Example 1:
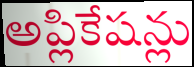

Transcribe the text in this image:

అప్లికేషన్లు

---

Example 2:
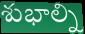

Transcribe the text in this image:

శుభాల్ని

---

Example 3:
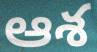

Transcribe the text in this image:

ఆశ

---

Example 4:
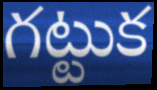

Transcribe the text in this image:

గట్టుక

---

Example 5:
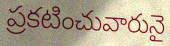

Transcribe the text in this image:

ప్రకటించువారునై